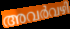
അവർവഴി